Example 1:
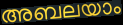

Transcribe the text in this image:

അബലയാം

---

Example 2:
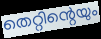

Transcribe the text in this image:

തെറ്റിന്റെയും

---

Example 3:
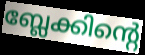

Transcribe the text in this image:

ബ്ലേക്കിന്റെ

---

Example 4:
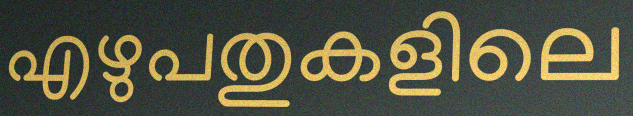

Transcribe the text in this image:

എഴുപതുകളിലെ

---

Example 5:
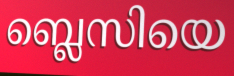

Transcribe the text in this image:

ബ്ലെസിയെ